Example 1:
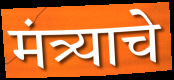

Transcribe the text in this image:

मंत्र्याचे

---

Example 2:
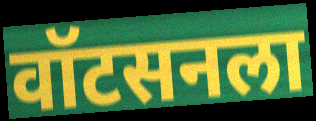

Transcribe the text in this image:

वॉटसनला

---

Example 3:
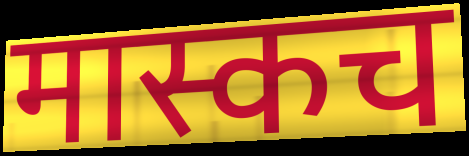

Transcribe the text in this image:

मास्कच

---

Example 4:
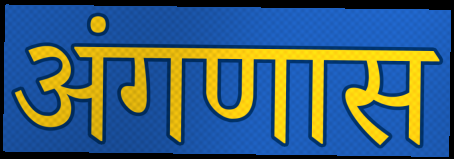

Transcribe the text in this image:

अंगणास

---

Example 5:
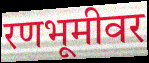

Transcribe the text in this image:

रणभूमीवर